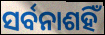
ସର୍ବନାଶହିଁ